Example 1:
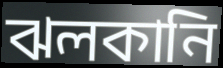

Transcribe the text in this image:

ঝলকানি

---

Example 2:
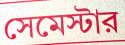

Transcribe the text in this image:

সেমেস্টার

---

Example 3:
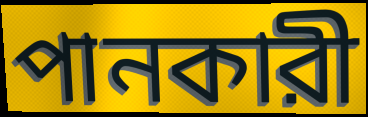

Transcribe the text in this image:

পানকারী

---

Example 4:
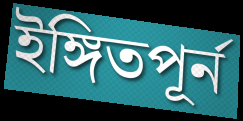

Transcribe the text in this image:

ইঙ্গিতপূর্ন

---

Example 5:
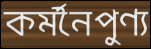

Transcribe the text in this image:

কর্মনৈপুণ্য